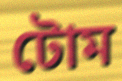
টোম